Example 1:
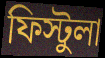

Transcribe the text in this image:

ফিস্টুলা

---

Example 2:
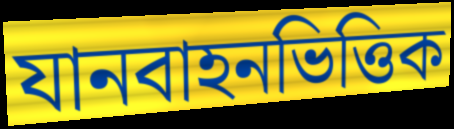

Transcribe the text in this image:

যানবাহনভিত্তিক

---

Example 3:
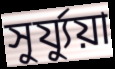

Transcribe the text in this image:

সুর্য্যুয়া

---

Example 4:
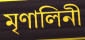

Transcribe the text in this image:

মৃণালিনী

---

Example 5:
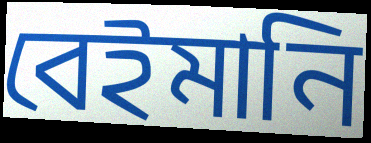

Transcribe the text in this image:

বেইমানি